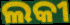
ଲକୀ